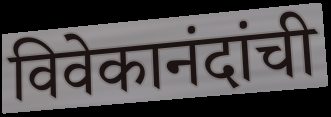
विवेकानंदांची